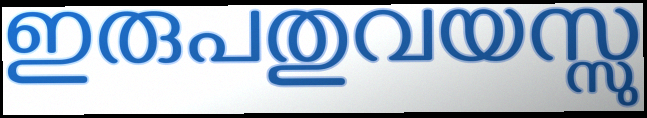
ഇരുപതുവയസ്സു